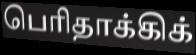
பெரிதாக்கிக்